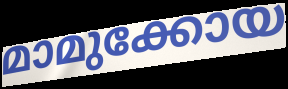
മാമുക്കോയ